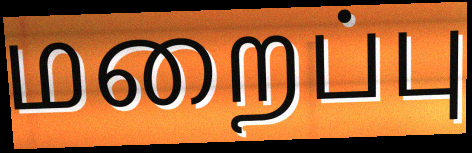
மறைப்பு